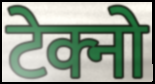
टेक्‍नो